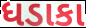
ધડાકા